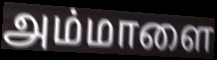
அம்மாளை